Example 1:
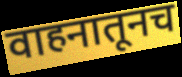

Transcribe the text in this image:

वाहनातूनच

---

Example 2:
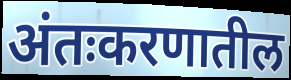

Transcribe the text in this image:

अंतःकरणातील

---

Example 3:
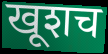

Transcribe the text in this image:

खूशच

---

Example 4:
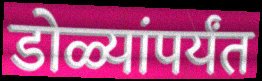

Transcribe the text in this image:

डोळ्यांपर्यंत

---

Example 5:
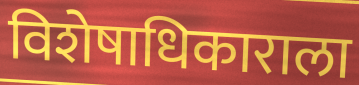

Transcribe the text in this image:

विशेषाधिकाराला